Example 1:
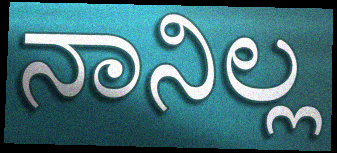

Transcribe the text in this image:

ನಾನಿಲ್ಲ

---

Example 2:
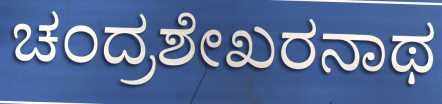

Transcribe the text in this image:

ಚಂದ್ರಶೇಖರನಾಥ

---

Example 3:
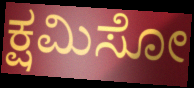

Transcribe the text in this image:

ಕ್ಷಮಿಸೋ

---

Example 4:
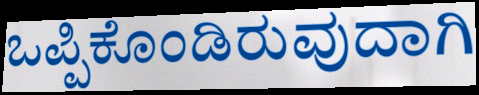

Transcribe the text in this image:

ಒಪ್ಪಿಕೊಂಡಿರುವುದಾಗಿ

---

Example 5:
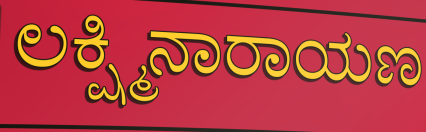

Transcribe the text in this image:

ಲಕ್ಷ್ಮಿನಾರಾಯಣ